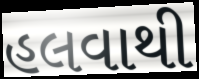
હલવાથી